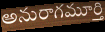
అనురాగమూర్తి